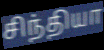
சிந்தியா